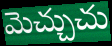
మెచ్చుచు